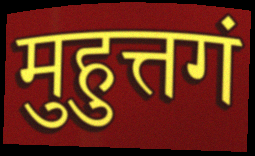
मुहुत्तगं